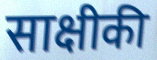
साक्षीकी